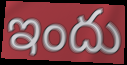
ఇందు